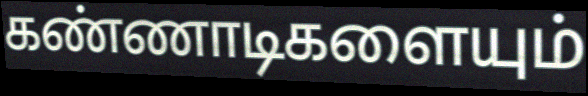
கண்ணாடிகளையும்